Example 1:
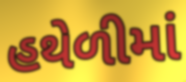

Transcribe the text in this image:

હથેળીમાં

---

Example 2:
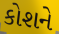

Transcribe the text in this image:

કોશને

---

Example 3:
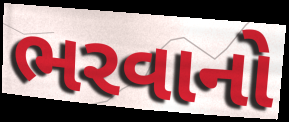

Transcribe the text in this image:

ભરવાનો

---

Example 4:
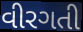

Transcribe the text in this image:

વીરગતી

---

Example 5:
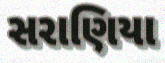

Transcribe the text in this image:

સરાણિયા